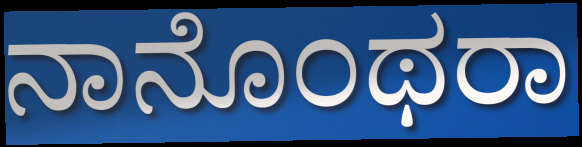
ನಾನೊಂಥರಾ